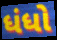
ધંધો